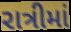
રાત્રીમાં